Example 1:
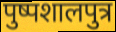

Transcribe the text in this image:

पुष्पशालपुत्र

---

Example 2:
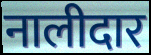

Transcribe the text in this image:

नालीदार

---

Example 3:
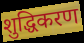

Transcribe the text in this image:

शुद्धिकरण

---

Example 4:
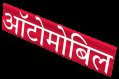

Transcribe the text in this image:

ऑटोमोबिल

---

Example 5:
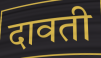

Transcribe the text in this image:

दावती